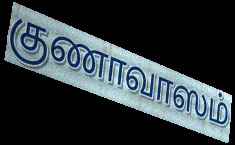
குணாவாஸம்